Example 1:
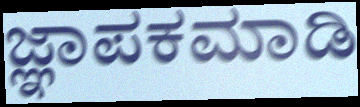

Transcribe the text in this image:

ಜ್ಞಾಪಕಮಾಡಿ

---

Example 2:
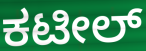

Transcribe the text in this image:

ಕಟೀಲ್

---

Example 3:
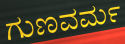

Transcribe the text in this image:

ಗುಣವರ್ಮ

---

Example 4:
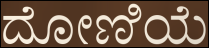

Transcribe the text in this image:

ದೋಣಿಯೆ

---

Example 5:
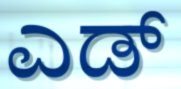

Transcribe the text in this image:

ಎಡ್